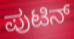
ಪುಟಿನ್